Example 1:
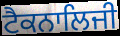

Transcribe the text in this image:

ਟੈਕਨਾਲਿਜੀ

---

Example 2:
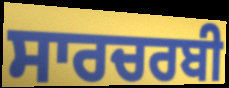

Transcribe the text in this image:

ਸਾਰਚਰਬੀ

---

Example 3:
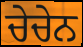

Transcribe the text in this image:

ਚੇਚੇਨ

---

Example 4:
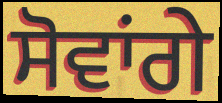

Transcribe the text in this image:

ਸੋਵਾਂਗੇ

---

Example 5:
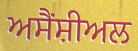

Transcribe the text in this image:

ਅਸੈਂਸ਼ੀਅਲ